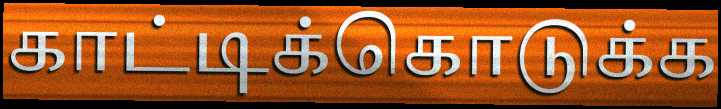
காட்டிக்கொடுக்க